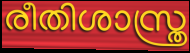
രീതിശാസ്ത്ര